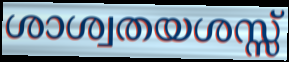
ശാശ്വതയശസ്സ്